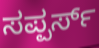
ಸಪ್ಪರ್ಸ್